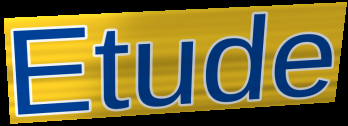
Etude